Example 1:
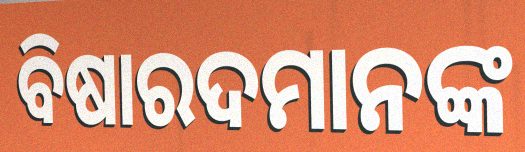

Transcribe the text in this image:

ବିଷାରଦମାନଙ୍କ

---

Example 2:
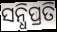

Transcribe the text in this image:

ସନ୍ଧିପ୍ରତି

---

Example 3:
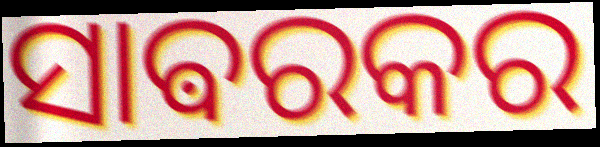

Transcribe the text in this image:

ସାଵରକର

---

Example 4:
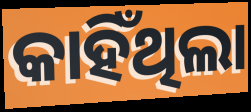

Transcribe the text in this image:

କାହିଁଥିଲା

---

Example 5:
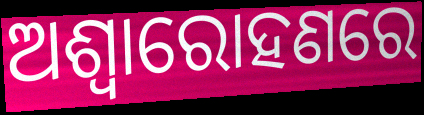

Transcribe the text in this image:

ଅଶ୍ୱାରୋହଣରେ